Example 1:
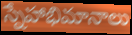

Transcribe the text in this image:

స్నేహాభిమానాలు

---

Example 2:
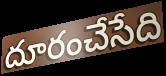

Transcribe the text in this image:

దూరంచేసేది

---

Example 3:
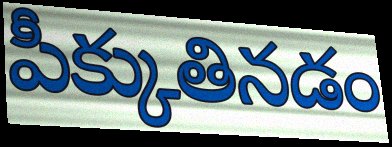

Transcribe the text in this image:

పీక్కుతినడం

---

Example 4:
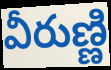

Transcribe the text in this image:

వీరుణ్ణి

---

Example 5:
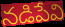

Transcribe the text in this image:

నడిపేవి